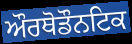
ਔਰਥੋਡੌਨਟਿਕ